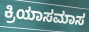
ಕ್ರಿಯಾಸಮಾಸ